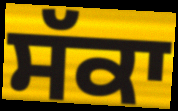
ਸੱਕਾ